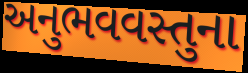
અનુભવવસ્તુના